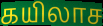
கயிலாச